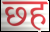
छ्ह